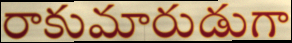
రాకుమారుడుగా